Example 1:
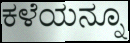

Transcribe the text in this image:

ಕಳೆಯನ್ನೂ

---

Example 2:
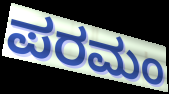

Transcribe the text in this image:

ಪರಮಂ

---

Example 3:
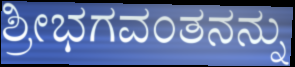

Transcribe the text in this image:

ಶ್ರೀಭಗವಂತನನ್ನು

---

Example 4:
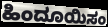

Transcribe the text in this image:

ಹಿಂದೂಯಿಸಂ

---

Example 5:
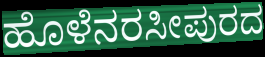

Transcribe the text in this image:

ಹೊಳೆನರಸೀಪುರದ